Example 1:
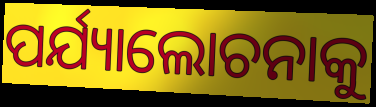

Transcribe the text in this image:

ପର୍ଯ୍ୟାଲୋଚନାକୁ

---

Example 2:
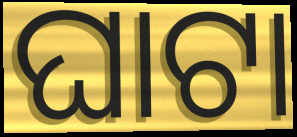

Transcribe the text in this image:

ଘାଟା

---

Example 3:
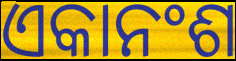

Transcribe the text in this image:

ଏକାନଂଶ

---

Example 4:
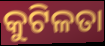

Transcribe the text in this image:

କୁଟିଳତା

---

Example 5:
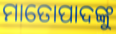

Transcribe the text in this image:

ମାତୋପାଦଙ୍କୁ